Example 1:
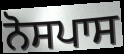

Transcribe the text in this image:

ਨੋਸਪਾਸ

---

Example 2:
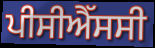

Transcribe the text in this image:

ਪੀਸੀਐੱਸਸੀ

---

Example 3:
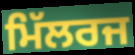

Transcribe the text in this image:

ਮਿੱਲਰਜ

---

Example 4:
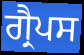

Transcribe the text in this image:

ਗ੍ਰੈਪਸ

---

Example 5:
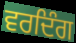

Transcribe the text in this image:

ਵਰਦਿੰਗ